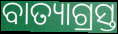
ବାତ୍ୟାଗ୍ରସ୍ତ